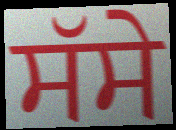
ਸੱਸੇ